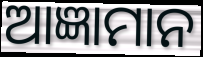
ଆଜ୍ଞାମାନ